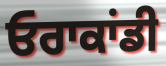
ਓਰਾਕਾਂਡੀ